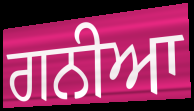
ਗਨੀਆ